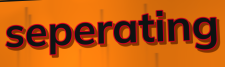
seperating